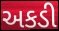
અકડી